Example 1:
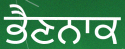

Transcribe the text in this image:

ਭੈਣਨਾਕ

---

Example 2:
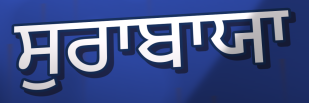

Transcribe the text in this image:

ਸੁਰਾਬਾਯਾ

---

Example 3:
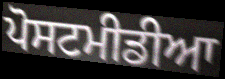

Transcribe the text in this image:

ਪੋਸਟਮੀਡੀਆ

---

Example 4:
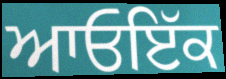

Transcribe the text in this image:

ਆਓਇੱਕ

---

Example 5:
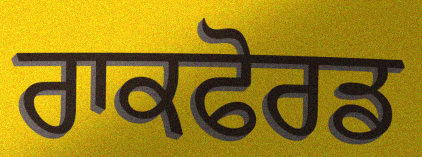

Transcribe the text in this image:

ਰਾਕਫੋਰਡ